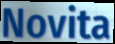
Novita